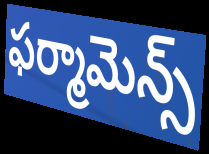
ఫర్మామెన్స్